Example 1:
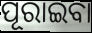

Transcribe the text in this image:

ପୂରାଇବା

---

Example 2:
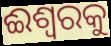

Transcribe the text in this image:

ଈଶ୍ୱରକୁ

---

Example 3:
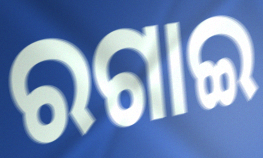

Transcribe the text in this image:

ରଗାଇ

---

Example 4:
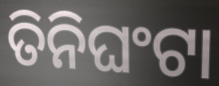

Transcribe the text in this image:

ତିନିଘଂଟା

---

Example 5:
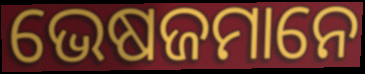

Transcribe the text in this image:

ଭେଷଜମାନେ